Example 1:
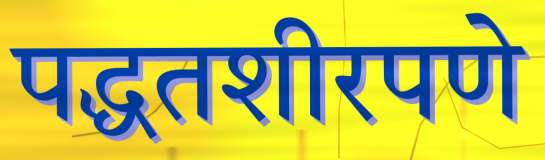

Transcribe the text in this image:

पद्धतशीरपणे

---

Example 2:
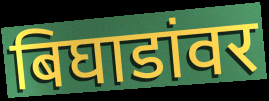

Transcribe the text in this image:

बिघाडांवर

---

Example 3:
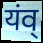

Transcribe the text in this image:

यंव्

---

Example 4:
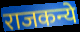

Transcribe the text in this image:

राजकन्ये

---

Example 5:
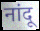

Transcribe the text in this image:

नांदू